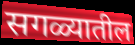
सगळ्यातील